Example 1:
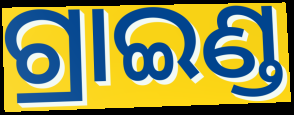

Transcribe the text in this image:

ଗ୍ରାଇଣ୍ଡ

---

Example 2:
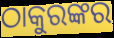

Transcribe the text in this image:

ଠାକୁରଙ୍କର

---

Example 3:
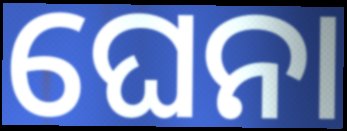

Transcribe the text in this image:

ଘେନା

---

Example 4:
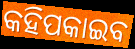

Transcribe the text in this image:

କହିପକାଇବ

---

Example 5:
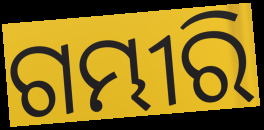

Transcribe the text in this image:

ଗମ୍ଭୀରି